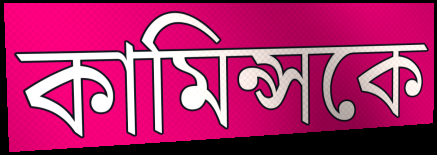
কামিন্সকে